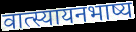
वात्स्यायनभाष्य